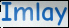
Imlay